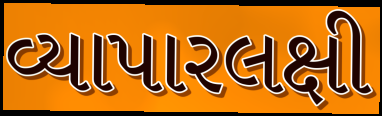
વ્યાપારલક્ષી